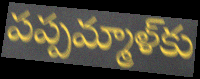
పప్పమ్మాళ్‌కు